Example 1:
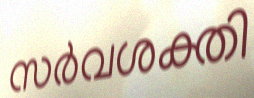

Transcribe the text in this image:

സർവശക്തി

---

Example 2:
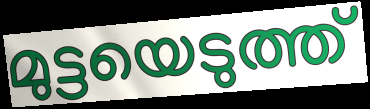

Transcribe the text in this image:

മുട്ടയെടുത്ത്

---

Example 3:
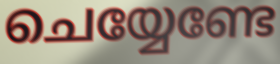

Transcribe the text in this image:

ചെയ്യേണ്ടേ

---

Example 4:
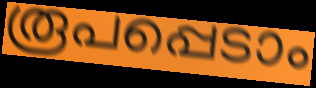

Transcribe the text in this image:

രൂപപ്പെടാം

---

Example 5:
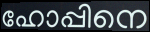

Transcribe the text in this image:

ഹോപ്പിനെ